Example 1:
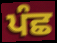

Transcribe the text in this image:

ਪੰਛ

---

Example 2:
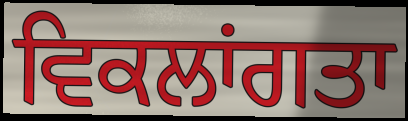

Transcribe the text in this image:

ਵਿਕਲਾਂਗਤਾ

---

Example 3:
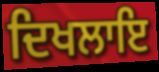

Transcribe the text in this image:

ਦਿਖਲਾਇ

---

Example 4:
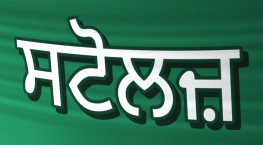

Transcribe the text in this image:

ਸਟੋਲਜ਼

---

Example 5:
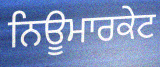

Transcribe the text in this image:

ਨਿਊਮਾਰਕੇਟ